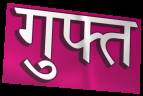
गुफ्त